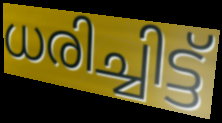
ധരിച്ചിട്ട്